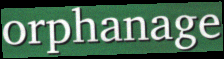
orphanage